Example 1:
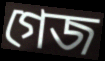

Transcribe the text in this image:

গেজ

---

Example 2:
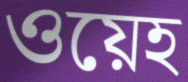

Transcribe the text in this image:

ওয়েহ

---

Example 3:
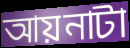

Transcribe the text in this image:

আয়নাটা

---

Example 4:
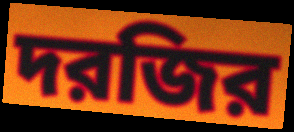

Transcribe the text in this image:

দরজির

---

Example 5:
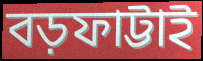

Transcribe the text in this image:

বড়ফাট্টাই